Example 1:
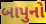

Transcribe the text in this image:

બાપુનો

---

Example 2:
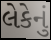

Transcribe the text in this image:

લેકેનું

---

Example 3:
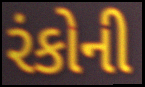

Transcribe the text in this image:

રંકોની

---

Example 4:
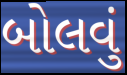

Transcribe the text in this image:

બોલવું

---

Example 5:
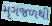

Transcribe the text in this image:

મૃગજળથી